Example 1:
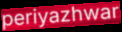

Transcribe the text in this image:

periyazhwar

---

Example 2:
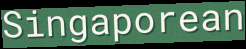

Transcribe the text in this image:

Singaporean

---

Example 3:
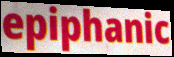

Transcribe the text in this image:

epiphanic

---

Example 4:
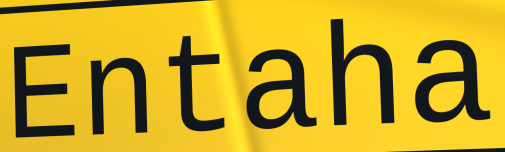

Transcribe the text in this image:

Entaha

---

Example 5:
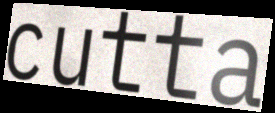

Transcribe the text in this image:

cutta